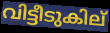
വിട്ടീടുകില്